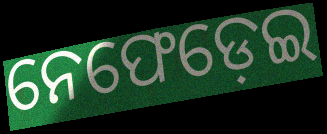
ନେଫେଡ଼େଇ